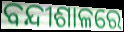
ବନ୍ଦୀଶାଳରେ